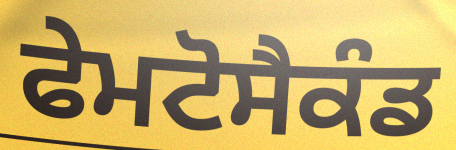
ਫੇਮਟੋਸੈਕੰਡ